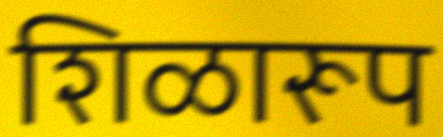
शिळारूप